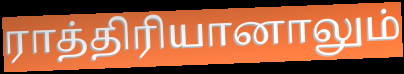
ராத்திரியானாலும்